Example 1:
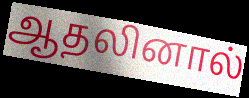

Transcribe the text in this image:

ஆதலினால்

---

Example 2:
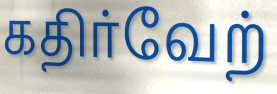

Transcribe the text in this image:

கதிர்வேற்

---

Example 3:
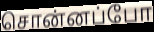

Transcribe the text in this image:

சொன்னப்போ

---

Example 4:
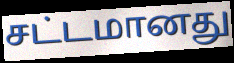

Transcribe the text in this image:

சட்டமானது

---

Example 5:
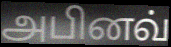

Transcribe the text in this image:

அபினவ்